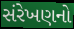
સંરેખણનો